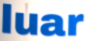
luar